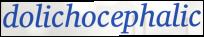
dolichocephalic